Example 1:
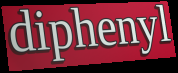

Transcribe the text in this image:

diphenyl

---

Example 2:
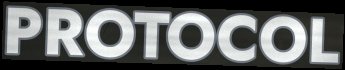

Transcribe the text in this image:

PROTOCOL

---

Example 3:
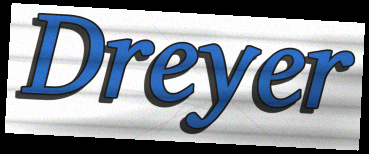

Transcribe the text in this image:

Dreyer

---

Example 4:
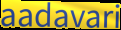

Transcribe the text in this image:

aadavari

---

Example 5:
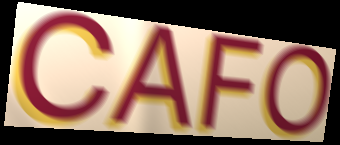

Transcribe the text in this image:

CAFO